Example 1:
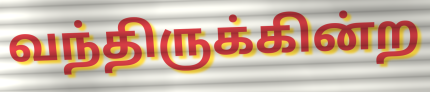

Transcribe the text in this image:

வந்திருக்கின்ற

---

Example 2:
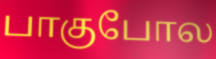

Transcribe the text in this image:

பாகுபோல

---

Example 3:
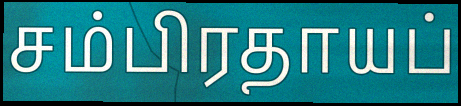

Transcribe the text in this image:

சம்பிரதாயப்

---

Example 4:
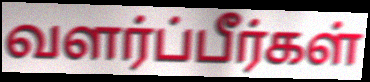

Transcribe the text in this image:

வளர்ப்பீர்கள்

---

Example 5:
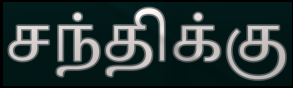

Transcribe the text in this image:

சந்திக்கு